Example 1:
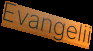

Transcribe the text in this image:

Evangelii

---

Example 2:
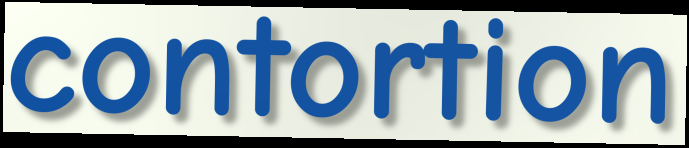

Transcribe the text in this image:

contortion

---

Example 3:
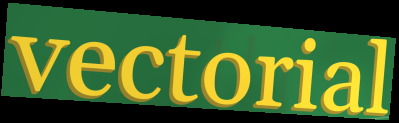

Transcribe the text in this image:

vectorial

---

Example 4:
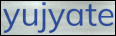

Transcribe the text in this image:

yujyate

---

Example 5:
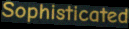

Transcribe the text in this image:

Sophisticated